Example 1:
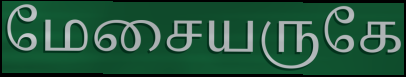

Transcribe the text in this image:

மேசையருகே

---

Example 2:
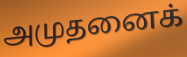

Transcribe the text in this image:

அமுதனைக்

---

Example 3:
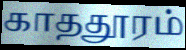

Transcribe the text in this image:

காததூரம்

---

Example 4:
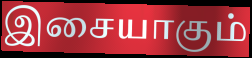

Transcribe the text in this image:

இசையாகும்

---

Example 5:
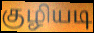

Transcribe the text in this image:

குழியடி